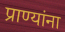
प्राण्यांना